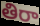
తిరా